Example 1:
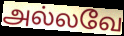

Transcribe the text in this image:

அல்லவே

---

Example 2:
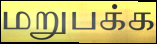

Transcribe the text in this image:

மறுபக்க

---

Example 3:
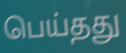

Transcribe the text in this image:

பெய்தது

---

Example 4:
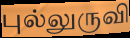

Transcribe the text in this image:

புல்லுருவி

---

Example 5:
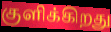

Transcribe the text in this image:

குளிக்கிறது